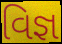
વિજ્ઞ